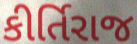
કીર્તિરાજ